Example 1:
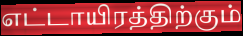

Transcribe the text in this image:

எட்டாயிரத்திற்கும்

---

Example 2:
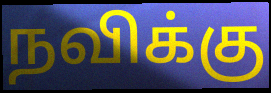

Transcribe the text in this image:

நவிக்கு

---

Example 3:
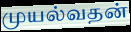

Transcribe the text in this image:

முயல்வதன்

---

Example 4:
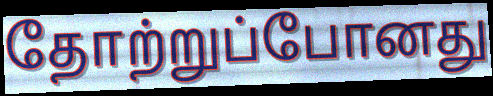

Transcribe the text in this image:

தோற்றுப்போனது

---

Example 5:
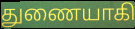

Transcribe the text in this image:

துணையாகி